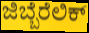
ಜಿಬ್ಬೆರೆಲಿಕ್